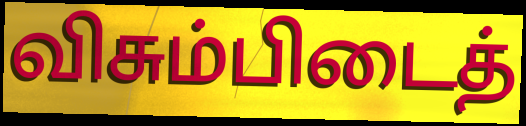
விசும்பிடைத்